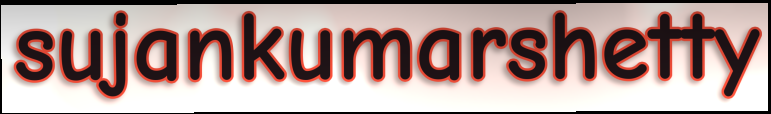
sujankumarshetty